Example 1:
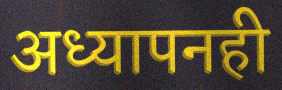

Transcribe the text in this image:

अध्यापनही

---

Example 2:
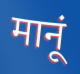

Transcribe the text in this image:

मानूं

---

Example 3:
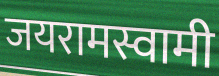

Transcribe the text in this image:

जयरामस्वामी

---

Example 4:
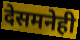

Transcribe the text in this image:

देसमनेही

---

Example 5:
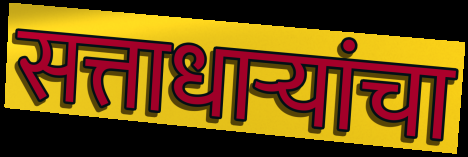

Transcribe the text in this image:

सत्ताधाऱ्यांचा